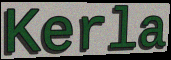
Kerla